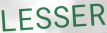
LESSER